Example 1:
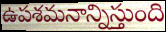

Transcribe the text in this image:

ఉపశమనాన్నిస్తుంది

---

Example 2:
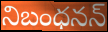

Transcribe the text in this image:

నిబంధనన్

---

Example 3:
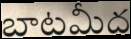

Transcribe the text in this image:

బాటమీద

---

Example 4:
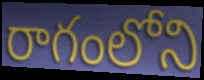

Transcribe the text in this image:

రాగంలోని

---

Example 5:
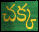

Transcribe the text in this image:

చక్క